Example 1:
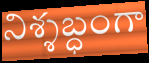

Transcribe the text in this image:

నిశ్శబ్ధంగా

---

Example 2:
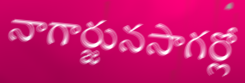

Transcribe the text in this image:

నాగార్జునసాగర్లో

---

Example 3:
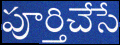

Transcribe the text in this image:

పూర్తిచేసే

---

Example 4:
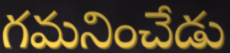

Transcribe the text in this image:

గమనించేడు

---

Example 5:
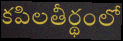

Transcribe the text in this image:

కపిలతీర్థంలో